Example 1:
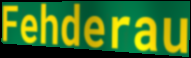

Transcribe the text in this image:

Fehderau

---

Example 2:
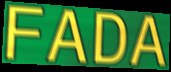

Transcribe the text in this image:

FADA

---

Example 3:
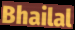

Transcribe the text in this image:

Bhailal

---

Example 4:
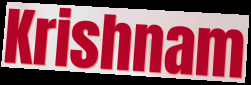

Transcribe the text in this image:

Krishnam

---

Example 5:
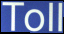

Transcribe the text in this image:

Toll